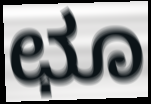
ಛೂ